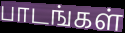
பாடங்கள்